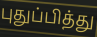
புதுப்பித்து